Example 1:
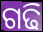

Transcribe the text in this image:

ଗଢି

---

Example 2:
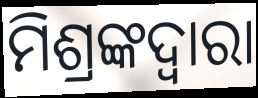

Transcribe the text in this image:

ମିଶ୍ରଙ୍କଦ୍ୱାରା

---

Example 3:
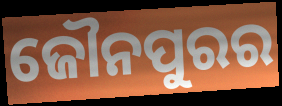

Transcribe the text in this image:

ଜୌନପୁରର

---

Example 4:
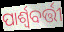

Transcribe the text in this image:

ପାର୍ଶ୍ୱବର୍ତ୍ତୀ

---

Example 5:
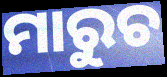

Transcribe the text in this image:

ମାରୁଚ